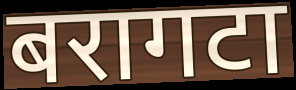
बरागटा